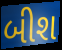
બીશ